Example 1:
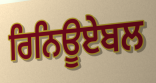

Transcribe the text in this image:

ਰਿਨਿਊਏਬਲ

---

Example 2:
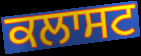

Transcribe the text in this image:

ਕਲਾਸਟ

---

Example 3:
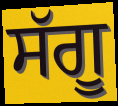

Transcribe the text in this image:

ਸੱਗੂ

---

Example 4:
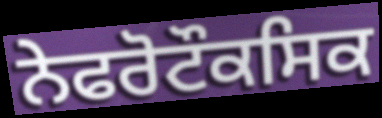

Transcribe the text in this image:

ਨੇਫਰੋਟੌਕਸਿਕ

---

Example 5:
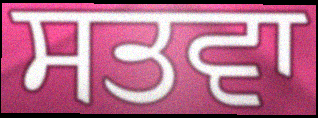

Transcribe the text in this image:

ਸਤਵਾ